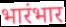
भारंभार